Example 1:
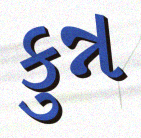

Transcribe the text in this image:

કુન્ન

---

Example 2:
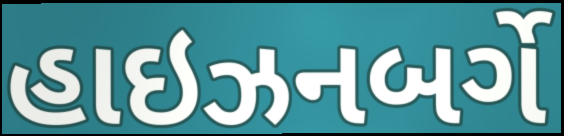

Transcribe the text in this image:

હાઇઝનબર્ગે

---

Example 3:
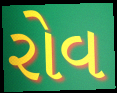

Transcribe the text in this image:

રોવ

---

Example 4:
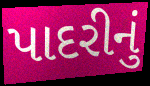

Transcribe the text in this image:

પાદરીનું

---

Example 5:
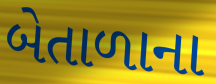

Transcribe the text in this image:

બેતાળાના